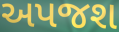
અપજશ